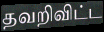
தவறிவிட்ட